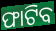
ଫାଟିବ